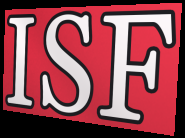
ISF